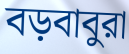
বড়বাবুরা